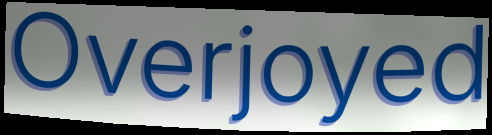
Overjoyed